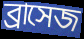
ব্রাসেজ